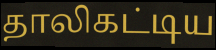
தாலிகட்டிய